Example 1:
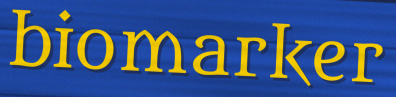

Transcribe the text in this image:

biomarker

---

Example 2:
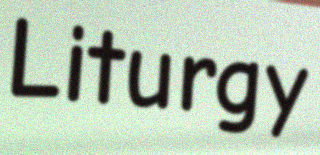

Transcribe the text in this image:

Liturgy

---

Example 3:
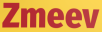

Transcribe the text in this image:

Zmeev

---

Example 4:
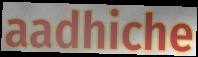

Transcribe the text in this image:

aadhiche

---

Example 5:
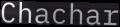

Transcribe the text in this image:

Chachar